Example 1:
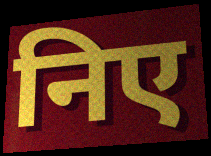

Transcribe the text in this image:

निए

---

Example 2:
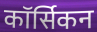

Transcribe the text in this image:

कॉर्सिकन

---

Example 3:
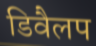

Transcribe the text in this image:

डिवैलप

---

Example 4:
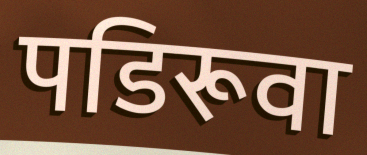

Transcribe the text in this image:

पडिरूवा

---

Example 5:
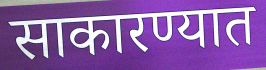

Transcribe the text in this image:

साकारण्यात